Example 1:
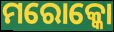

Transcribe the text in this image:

ମରୋକ୍କୋ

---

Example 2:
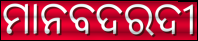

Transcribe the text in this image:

ମାନବଦରଦୀ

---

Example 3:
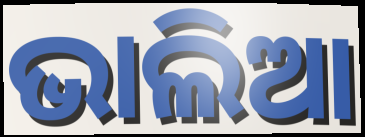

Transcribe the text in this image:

ଭାଲିଆ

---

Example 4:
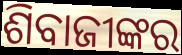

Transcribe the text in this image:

ଶିବାଜୀଙ୍କର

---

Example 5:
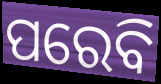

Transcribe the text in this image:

ପରେବି